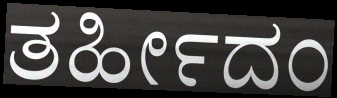
ತರ್ಹೀದಂ